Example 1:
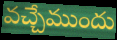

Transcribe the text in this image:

వచ్చేముందు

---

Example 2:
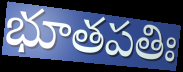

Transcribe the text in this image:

భూతపతిః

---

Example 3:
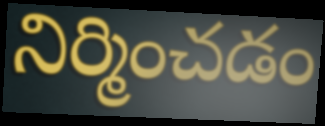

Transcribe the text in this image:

నిర్మించడం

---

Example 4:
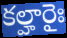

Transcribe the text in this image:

కల్హారైః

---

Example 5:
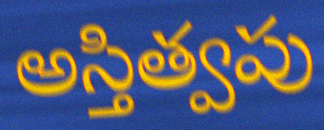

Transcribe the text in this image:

అస్తిత్వపు